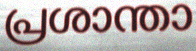
പ്രശാന്താ